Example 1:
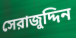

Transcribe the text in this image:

সেরাজুদ্দিন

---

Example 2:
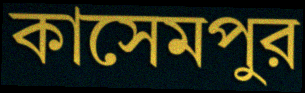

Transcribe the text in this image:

কাসেমপুর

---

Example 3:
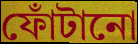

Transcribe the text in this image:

ফোঁটানো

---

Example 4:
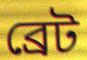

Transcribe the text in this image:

ব্রেট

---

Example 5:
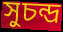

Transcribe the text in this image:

সুচন্দ্র